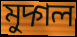
মুদ্গল